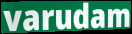
varudam